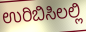
ಉರಿಬಿಸಿಲಲ್ಲಿ